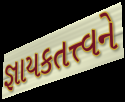
જ્ઞાયકતત્ત્વને